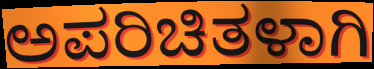
ಅಪರಿಚಿತಳಾಗಿ